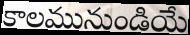
కాలమునుండియే